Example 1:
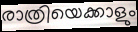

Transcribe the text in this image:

രാത്രിയെക്കാളും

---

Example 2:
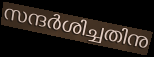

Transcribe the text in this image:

സന്ദർശിച്ചതിനു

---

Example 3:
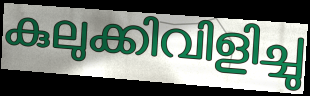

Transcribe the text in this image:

കുലുക്കിവിളിച്ചു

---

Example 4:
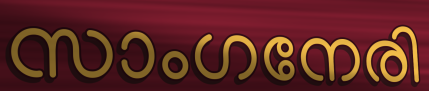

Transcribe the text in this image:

സാംഗനേരി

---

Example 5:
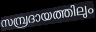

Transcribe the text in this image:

സമ്പ്രദായത്തിലും